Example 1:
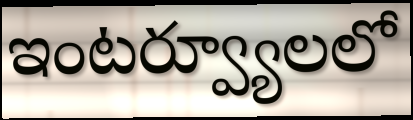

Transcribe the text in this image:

ఇంటర్వ్యూలలో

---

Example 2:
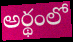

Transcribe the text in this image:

అర్థంలో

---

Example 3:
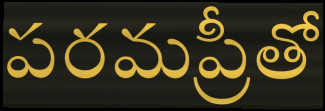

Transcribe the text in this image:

పరమప్రీతో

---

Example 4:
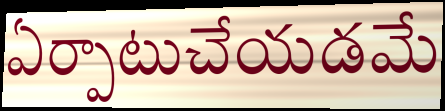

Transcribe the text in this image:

ఏర్పాటుచేయడమే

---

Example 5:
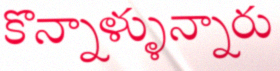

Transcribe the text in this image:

కొన్నాళ్ళున్నారు